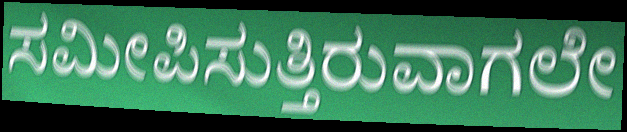
ಸಮೀಪಿಸುತ್ತಿರುವಾಗಲೇ